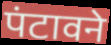
पंटावने